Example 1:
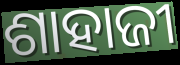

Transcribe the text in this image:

ଶାହାଜୀ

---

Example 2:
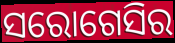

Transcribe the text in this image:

ସରୋଗେସିର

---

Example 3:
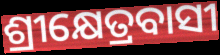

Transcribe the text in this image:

ଶ୍ରୀକ୍ଷେତ୍ରବାସୀ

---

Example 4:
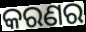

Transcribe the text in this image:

କରଣର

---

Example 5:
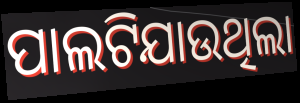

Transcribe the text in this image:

ପାଲଟିଯାଉଥିଲା